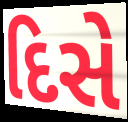
દિસે